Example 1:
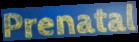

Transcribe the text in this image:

Prenatal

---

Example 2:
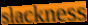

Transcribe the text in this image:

slackness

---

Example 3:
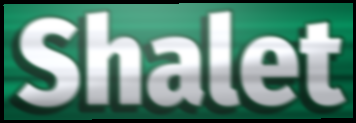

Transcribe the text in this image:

Shalet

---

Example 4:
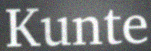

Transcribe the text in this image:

Kunte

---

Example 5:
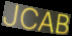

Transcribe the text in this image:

JCAB